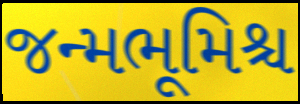
જન્મભૂમિશ્ચ